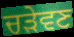
ਚੜੇਵਣ